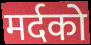
मर्दको